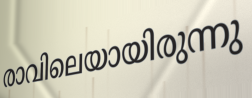
രാവിലെയായിരുന്നു